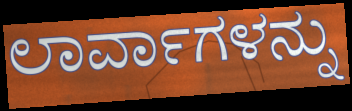
ಲಾರ್ವಾಗಳನ್ನು